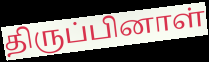
திருப்பினாள்